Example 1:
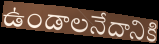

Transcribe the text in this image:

ఉండాలనేదానికి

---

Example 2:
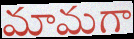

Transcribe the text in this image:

మామగా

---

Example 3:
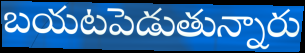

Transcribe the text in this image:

బయటపెడుతున్నారు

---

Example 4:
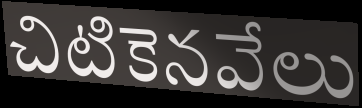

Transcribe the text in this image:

చిటికెనవేలు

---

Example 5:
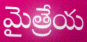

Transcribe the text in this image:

మైత్రేయ